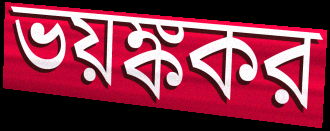
ভয়ঙ্ককর